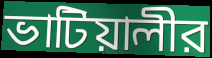
ভাটিয়ালীর